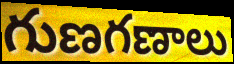
గుణగణాలు